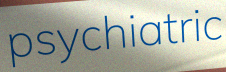
psychiatric